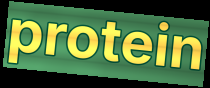
protein